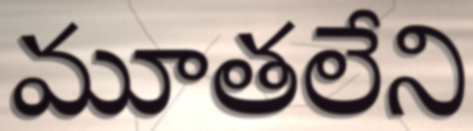
మూతలేని